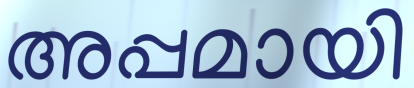
അപ്പമായി